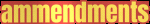
ammendments